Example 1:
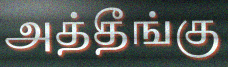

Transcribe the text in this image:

அத்தீங்கு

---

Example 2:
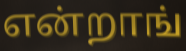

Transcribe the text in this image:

என்றாங்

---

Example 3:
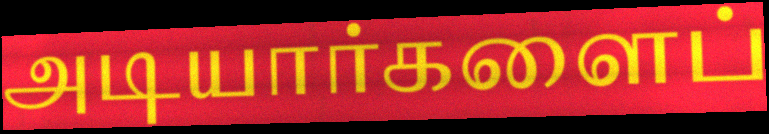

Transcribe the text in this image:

அடியார்களைப்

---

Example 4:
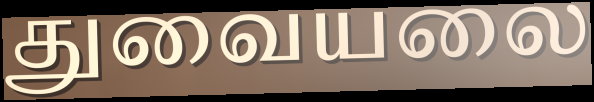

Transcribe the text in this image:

துவையலை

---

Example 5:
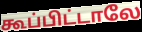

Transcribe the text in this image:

கூப்பிட்டாலே